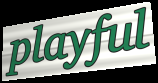
playful